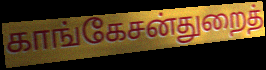
காங்கேசன்துறைத்